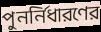
পুনর্নিধারণের